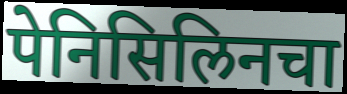
पेनिसिलिनचा